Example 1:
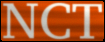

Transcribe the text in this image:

NCT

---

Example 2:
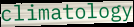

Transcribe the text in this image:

climatology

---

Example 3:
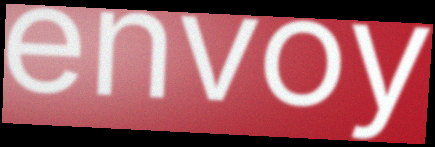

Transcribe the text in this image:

envoy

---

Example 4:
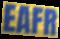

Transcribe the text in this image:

EAFR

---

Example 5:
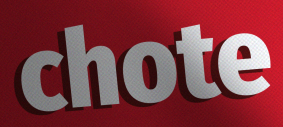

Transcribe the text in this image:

chote